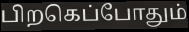
பிறகெப்போதும்